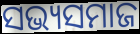
ସଭ୍ୟସମାଜ